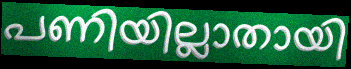
പണിയില്ലാതായി